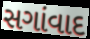
સગાંવાદ